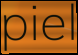
piel